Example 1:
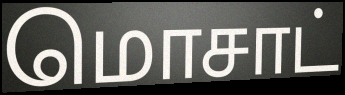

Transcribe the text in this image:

மொசாட்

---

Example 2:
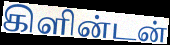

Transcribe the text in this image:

கிளின்டன்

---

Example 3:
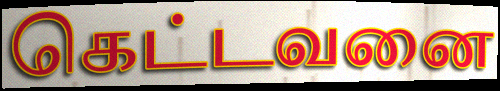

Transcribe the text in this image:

கெட்டவனை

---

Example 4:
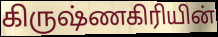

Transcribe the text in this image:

கிருஷ்ணகிரியின்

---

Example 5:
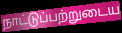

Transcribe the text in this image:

நாட்டுப்பற்றுடைய